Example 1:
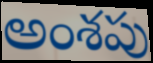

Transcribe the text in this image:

అంశపు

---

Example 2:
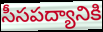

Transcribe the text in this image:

సీసపద్యానికి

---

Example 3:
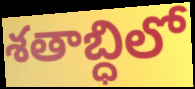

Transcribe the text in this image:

శతాబ్ధిలో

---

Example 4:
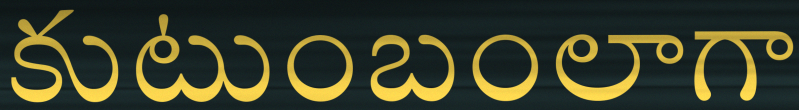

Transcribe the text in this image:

కుటుంబంలాగా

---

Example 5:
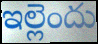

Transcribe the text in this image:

ఇల్లెందు